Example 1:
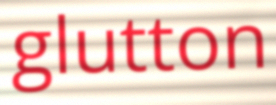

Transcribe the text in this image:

glutton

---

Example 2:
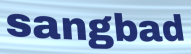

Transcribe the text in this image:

sangbad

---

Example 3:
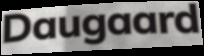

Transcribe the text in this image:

Daugaard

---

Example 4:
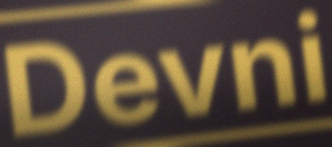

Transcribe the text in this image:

Devni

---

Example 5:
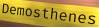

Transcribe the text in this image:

Demosthenes